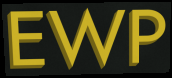
EWP